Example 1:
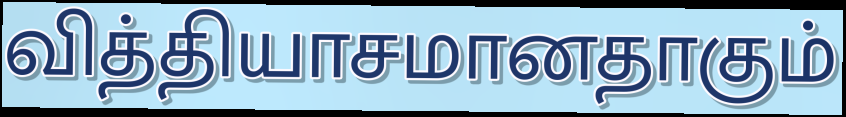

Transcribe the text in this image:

வித்தியாசமானதாகும்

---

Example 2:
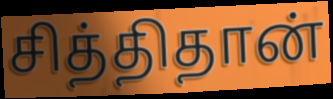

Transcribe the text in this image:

சித்திதான்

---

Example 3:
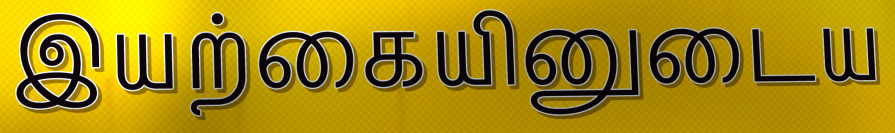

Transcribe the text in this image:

இயற்கையினுடைய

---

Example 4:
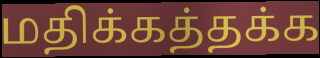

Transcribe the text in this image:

மதிக்கத்தக்க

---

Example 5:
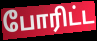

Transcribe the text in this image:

போரிட்ட